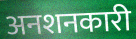
अनशनकारी